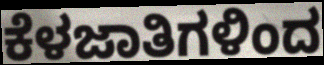
ಕೆಳಜಾತಿಗಳಿಂದ